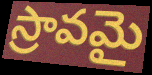
స్రావమై